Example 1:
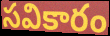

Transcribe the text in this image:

సవికారం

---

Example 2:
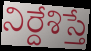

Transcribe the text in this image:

నిర్దేశిస్తే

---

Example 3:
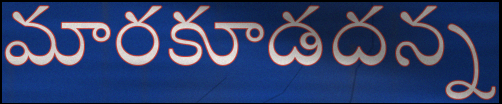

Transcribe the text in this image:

మారకూడదన్న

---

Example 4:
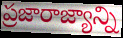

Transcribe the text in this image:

ప్రజారాజ్యాన్ని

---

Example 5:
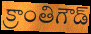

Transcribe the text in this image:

క్రాంతిగౌడ్